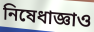
নিষেধাজ্ঞাও